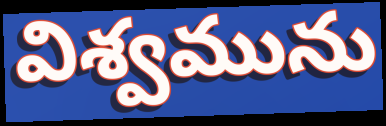
విశ్వమును